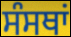
ਸੰਸਥਾਂ